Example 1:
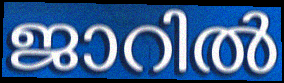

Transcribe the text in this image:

ജാറിൽ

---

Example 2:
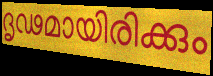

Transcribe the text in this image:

ദൃഢമായിരിക്കും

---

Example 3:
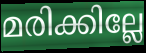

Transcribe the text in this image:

മരിക്കില്ലേ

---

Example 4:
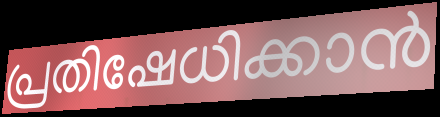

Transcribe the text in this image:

പ്രതിഷേധിക്കാൻ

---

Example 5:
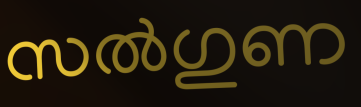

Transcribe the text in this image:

സൽഗുണ